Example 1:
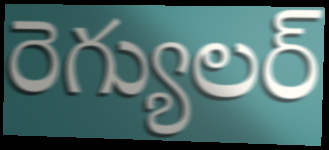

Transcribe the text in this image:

రెగ్యులర్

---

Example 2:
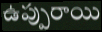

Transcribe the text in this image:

ఉప్పురాయి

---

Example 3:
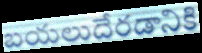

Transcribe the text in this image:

బయలుదేరడానికి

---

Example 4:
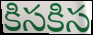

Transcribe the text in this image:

కిసకిస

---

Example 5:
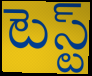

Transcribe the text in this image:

టెస్ట్